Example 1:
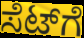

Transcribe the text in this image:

ಸೆಟ್‌ಗೆ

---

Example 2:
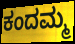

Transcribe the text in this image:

ಕಂದಮ್ಮ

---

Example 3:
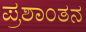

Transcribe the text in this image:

ಪ್ರಶಾಂತನ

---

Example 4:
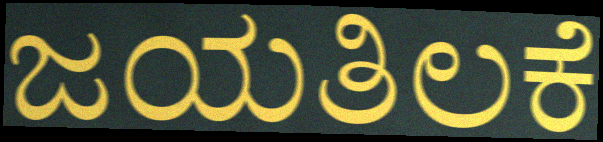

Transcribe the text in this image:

ಜಯತಿಲಕೆ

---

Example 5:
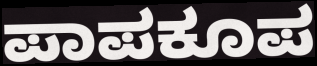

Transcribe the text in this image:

ಪಾಪಕೂಪ